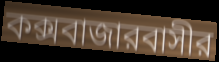
কক্সবাজারবাসীর